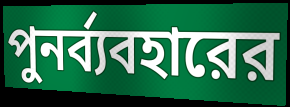
পুনর্ব্যবহারের